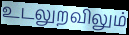
உடலுறவிலும்